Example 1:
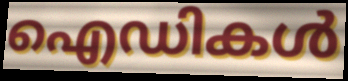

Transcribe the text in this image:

ഐഡികൾ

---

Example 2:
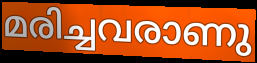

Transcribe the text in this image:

മരിച്ചവരാണു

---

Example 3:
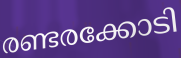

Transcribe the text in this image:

രണ്ടരക്കോടി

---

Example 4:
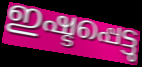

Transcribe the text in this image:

ഇഷ്ടപ്പെട്ടു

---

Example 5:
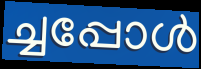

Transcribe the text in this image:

ച്ചപ്പോൾ